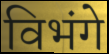
विभंगे